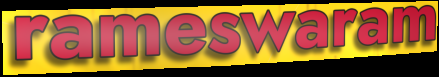
rameswaram